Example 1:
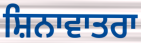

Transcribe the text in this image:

ਸ਼ਿਨਾਵਾਤਰਾ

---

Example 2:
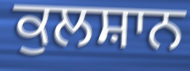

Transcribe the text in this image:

ਕੁਲਸ਼ਾਨ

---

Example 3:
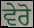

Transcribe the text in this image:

ਵੇਰੋ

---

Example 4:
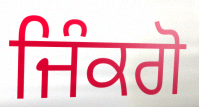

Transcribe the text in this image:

ਜਿੰਕਗੋ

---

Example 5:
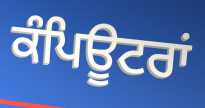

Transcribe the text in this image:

ਕੰਪਿਊਟਰਾਂ